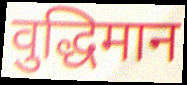
वुद्धिमान